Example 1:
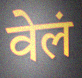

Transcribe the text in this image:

वेलं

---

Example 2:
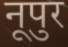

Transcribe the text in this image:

नूपुर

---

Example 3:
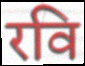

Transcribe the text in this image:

रवि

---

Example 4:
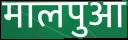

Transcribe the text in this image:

मालपुआ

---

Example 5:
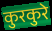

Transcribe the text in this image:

कुरकुरे